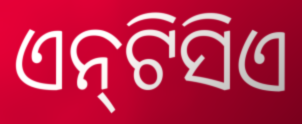
ଏନ୍‌ଟିସିଏ